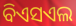
ବିଏସଏଲ